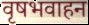
वृषभवाहन